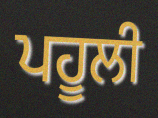
ਪਹੂਲੀ